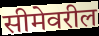
सीमेवरील